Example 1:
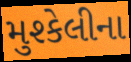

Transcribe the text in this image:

મુશ્કેલીના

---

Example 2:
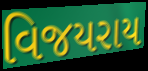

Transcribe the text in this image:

વિજયરાય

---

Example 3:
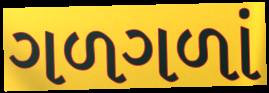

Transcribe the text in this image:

ગળગળાં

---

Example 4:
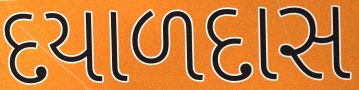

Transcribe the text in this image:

દયાળદાસ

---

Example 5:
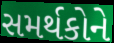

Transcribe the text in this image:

સમર્થકોને